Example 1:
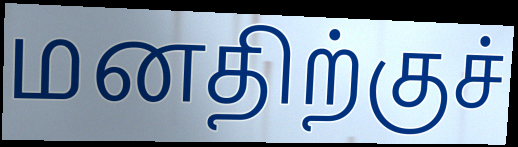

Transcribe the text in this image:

மனதிற்குச்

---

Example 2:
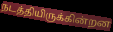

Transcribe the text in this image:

நடத்தியிருக்கின்றன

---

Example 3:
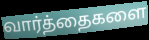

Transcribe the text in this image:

வார்த்தைகளை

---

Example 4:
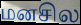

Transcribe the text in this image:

மனசில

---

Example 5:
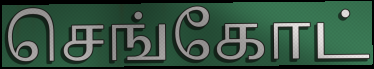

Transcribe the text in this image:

செங்கோட்